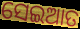
ସେଇଆତ